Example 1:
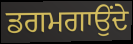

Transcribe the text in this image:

ਡਗਮਗਾਉਂਦੇ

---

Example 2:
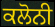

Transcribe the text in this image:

ਕਲੋਨੀ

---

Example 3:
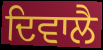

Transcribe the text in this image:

ਦਿਵਾਲੈ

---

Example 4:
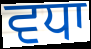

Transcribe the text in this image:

ਵਧਾ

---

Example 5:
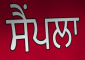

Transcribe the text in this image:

ਸੈਂਪਲਾ